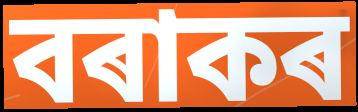
বৰাকৰ